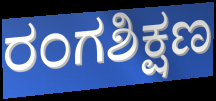
ರಂಗಶಿಕ್ಷಣ